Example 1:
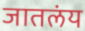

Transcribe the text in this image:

जातलंय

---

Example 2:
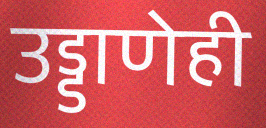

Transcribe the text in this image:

उड्डाणेही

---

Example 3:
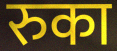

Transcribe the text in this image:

रुका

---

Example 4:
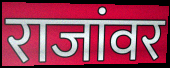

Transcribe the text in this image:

राजांवर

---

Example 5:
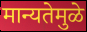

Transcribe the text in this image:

मान्यतेमुळे